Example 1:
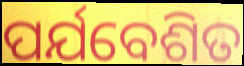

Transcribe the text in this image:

ପର୍ଯବେଶିତ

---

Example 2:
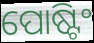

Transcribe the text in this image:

ପୋଷ୍ଟିଂ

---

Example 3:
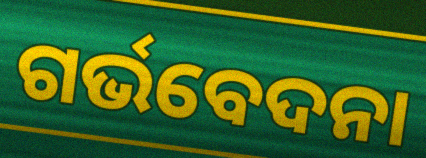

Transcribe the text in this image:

ଗର୍ଭବେଦନା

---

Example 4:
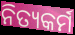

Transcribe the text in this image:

ନିତ୍ଯକର୍ମ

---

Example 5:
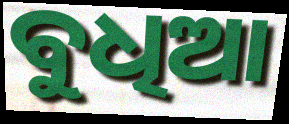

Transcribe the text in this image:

ବୁଧିଆ